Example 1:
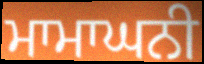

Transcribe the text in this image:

ਮਾਮਾਘਨੀ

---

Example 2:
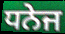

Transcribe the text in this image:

ਧਨੇਜ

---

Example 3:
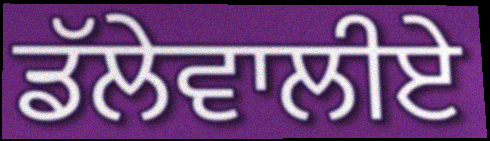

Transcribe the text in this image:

ਡੱਲੇਵਾਲੀਏ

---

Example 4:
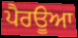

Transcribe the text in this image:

ਪੈਰਊਆ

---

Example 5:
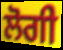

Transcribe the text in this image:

ਲੋਗੀ